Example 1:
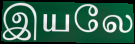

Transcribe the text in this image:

இயலே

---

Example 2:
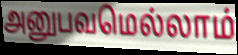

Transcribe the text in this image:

அனுபவமெல்லாம்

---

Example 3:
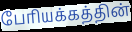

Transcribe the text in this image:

பேரியக்கத்தின்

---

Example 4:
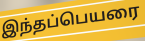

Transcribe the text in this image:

இந்தப்பெயரை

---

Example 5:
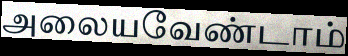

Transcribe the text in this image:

அலையவேண்டாம்